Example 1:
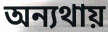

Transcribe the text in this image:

অন্যথায়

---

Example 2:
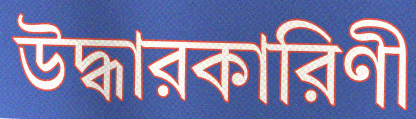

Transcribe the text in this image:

উদ্ধারকারিণী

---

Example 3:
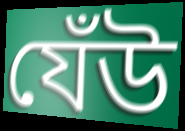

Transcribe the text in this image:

যেঁউ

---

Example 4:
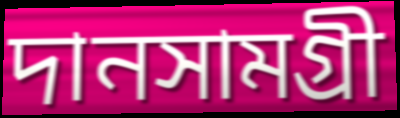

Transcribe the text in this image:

দানসামগ্রী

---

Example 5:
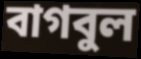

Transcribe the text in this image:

বাগবুল